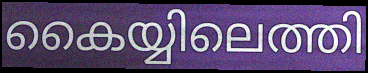
കൈയ്യിലെത്തി